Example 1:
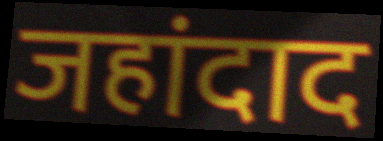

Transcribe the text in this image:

जहांदाद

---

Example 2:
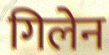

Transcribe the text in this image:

गिलेन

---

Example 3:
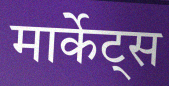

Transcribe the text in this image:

मार्केट्स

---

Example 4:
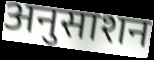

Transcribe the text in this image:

अनुसाशन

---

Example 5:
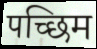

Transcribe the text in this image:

पच्छिम